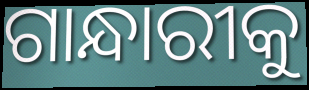
ଗାନ୍ଧାରୀକୁ